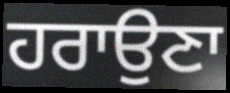
ਹਰਾਉਣਾ